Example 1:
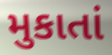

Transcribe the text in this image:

મુકાતાં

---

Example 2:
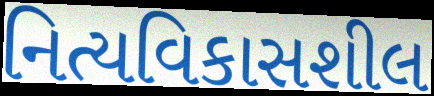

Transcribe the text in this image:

નિત્યવિકાસશીલ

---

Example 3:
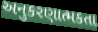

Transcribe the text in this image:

અનુકરણાત્મકતા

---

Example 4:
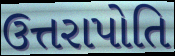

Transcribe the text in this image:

ઉત્તરાપોતિ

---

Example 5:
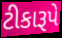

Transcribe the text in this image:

ટીકારૂપે